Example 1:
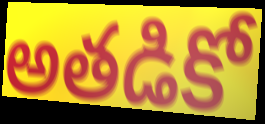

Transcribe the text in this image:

అతడికో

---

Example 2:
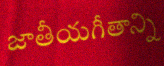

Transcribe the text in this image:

జాతీయగీతాన్ని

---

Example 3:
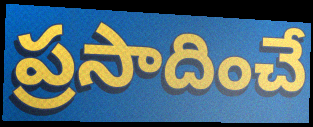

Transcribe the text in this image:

ప్రసాదించే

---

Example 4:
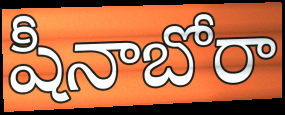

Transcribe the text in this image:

షీనాబోరా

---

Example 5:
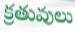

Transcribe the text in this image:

క్రతువులు